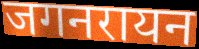
जगनरायन